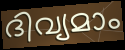
ദിവ്യമാം